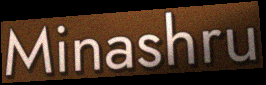
Minashru